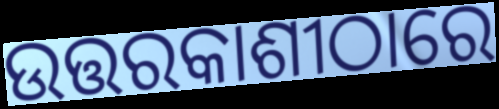
ଉତ୍ତରକାଶୀଠାରେ